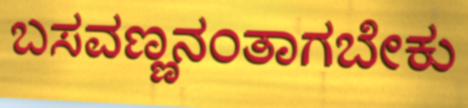
ಬಸವಣ್ಣನಂತಾಗಬೇಕು